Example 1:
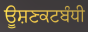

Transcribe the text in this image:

ਊਸ਼ਣਕਟਬੰਧੀ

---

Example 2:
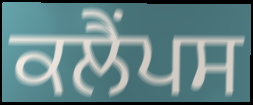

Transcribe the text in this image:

ਕਲੈਂਪਸ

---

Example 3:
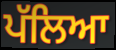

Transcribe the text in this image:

ਪੱਲਿਆ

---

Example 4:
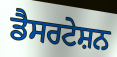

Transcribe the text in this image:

ਡੈਸਰਟੇਸ਼ਨ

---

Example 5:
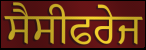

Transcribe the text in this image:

ਸੈਸੀਫਰੇਜ